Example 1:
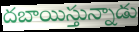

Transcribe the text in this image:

దబాయిస్తున్నాడు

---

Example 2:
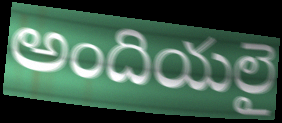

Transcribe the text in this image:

అందియలై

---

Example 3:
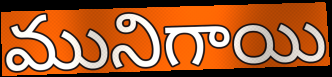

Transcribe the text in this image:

మునిగాయి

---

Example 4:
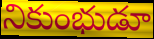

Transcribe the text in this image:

నికుంభుడూ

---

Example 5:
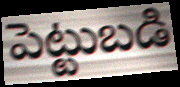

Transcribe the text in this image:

పెట్టుబడి